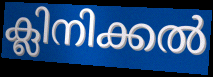
ക്ലിനിക്കൽ